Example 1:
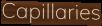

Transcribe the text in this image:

Capillaries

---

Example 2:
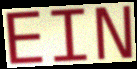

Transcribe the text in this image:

EIN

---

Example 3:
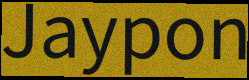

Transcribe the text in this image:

Jaypon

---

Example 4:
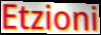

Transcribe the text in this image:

Etzioni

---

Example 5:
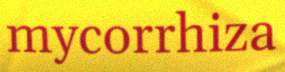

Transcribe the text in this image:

mycorrhiza